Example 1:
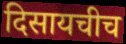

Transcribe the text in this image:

दिसायचीच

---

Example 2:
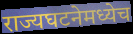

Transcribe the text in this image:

राज्यघटनेमध्येच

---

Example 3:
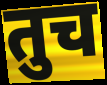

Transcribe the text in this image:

तुच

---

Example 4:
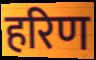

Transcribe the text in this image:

हरिण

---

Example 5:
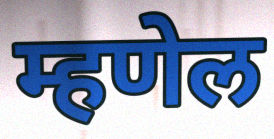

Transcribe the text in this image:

म्हणेल